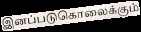
இனப்படுகொலைக்கும்